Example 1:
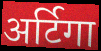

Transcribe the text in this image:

अर्टिगा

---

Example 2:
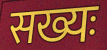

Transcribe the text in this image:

सख्यः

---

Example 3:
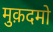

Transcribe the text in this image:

मुक़दमो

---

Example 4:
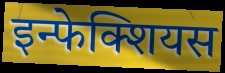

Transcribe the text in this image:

इन्फेक्शियस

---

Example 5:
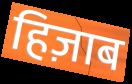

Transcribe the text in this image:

हिज़ाब